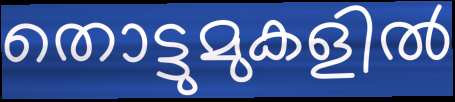
തൊട്ടുമുകളിൽ